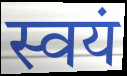
स्‍वयं